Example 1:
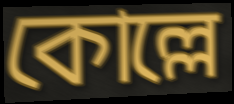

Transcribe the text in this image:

কোল্লে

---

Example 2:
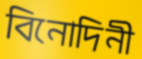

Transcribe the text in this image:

বিনোদিনী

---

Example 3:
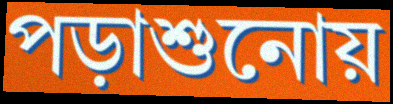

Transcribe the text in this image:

পড়াশুনোয়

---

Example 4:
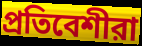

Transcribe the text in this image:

প্রতিবেশীরা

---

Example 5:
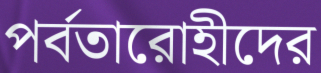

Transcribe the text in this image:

পর্বতারোহীদের